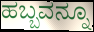
ಹಬ್ಬವನ್ನೂ